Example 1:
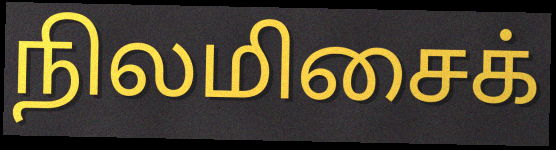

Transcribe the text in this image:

நிலமிசைக்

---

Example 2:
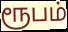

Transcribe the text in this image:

ரூபம்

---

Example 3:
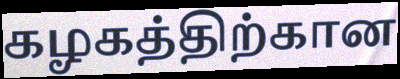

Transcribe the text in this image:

கழகத்திற்கான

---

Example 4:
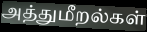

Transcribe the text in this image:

அத்துமீறல்கள்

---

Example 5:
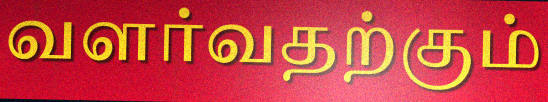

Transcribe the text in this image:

வளர்வதற்கும்